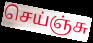
செய்ஞ்சு